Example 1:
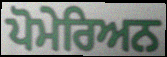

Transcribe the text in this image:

ਪੋਮੇਰਿਅਨ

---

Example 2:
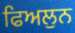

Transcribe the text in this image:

ਫਿਅਲੁਨ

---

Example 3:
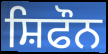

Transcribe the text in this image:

ਸ਼ਿਫੌਨ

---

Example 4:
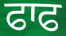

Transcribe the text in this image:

ਫਾਫ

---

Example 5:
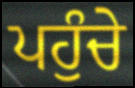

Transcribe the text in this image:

ਪਹੁੰਚੇ